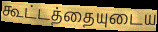
கூட்டத்தையுடைய